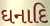
ઘનાદિ